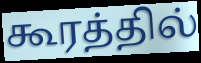
கூரத்தில்